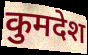
कुमदेश